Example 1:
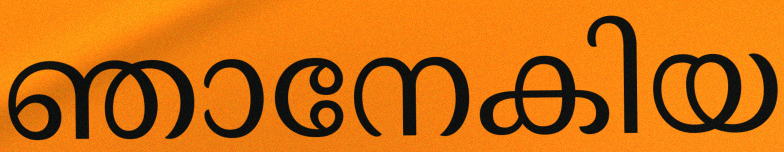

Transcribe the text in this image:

ഞാനേകിയ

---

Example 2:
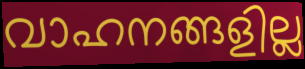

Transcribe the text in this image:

വാഹനങ്ങളില്ല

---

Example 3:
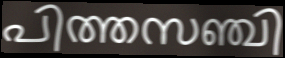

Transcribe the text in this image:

പിത്തസഞ്ചി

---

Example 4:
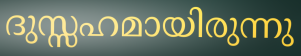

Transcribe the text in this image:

ദുസ്സഹമായിരുന്നു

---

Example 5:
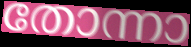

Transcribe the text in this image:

തോന്നാ